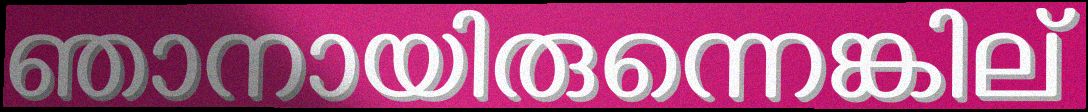
ഞാനായിരുന്നെങ്കില്